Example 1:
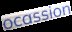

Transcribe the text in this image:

ocassion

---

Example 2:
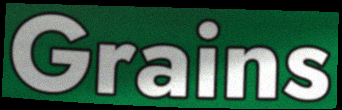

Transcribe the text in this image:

Grains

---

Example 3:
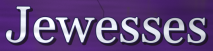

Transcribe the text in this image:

Jewesses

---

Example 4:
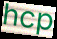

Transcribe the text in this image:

hcp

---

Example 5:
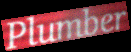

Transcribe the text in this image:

Plumber